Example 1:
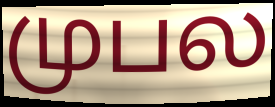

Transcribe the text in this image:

முபல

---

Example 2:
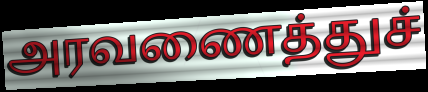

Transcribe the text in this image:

அரவணைத்துச்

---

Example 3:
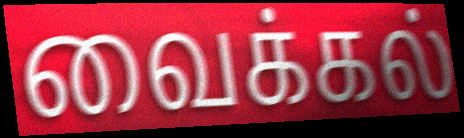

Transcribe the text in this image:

வைக்கல்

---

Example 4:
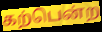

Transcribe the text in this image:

கற்பென்ற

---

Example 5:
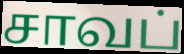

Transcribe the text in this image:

சாவப்